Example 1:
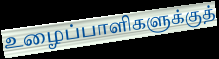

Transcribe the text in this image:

உழைப்பாளிகளுக்குத்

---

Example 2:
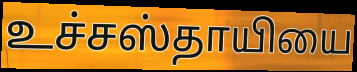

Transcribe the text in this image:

உச்சஸ்தாயியை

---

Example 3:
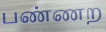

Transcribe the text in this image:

பண்ணற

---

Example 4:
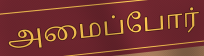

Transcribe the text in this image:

அமைப்போர்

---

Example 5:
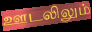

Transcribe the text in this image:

ஊடலிலும்